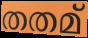
തതമ്